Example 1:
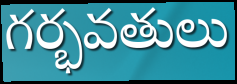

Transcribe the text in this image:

గర్భవతులు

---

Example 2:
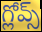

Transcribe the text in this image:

గ్లోవ్స్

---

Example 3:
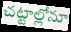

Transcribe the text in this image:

చట్టాల్లోనూ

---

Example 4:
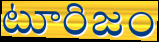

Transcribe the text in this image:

టూరిజం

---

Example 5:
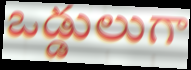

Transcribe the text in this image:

ఒడ్డులుగా